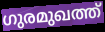
ഗുരമുഖത്ത്